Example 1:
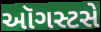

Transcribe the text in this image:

ઑગસ્ટસે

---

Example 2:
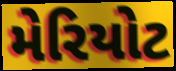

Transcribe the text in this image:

મેરિયોટ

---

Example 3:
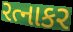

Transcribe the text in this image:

રત્નાકર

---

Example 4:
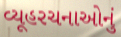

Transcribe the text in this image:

વ્યૂહરચનાઓનું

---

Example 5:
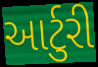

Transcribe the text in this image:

આર્ટુરી